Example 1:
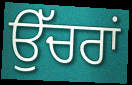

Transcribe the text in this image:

ਉੱਚਰਾਂ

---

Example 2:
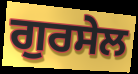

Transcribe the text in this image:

ਗੁਰਸੇਲ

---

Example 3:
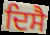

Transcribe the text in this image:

ਦਿਸੈ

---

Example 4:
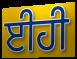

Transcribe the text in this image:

ਈਹੀ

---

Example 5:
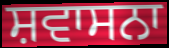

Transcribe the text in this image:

ਸ਼ਵਾਸਨਾ